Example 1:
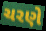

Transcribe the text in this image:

ચરણે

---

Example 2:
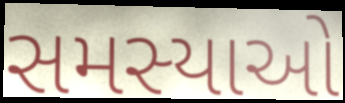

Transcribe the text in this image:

સમસ્યાઓ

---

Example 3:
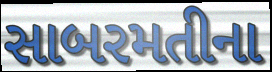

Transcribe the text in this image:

સાબરમતીના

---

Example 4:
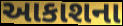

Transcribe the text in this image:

આકાશના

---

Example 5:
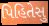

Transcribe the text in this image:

પિહિતેસુ